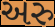
અરુ